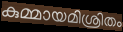
കുമ്മായമിശ്രിതം